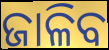
ଜାଳିବ